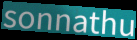
sonnathu